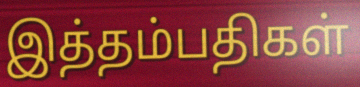
இத்தம்பதிகள்